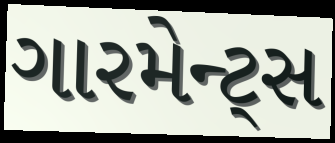
ગારમેન્ટ્સ